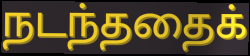
நடந்ததைக்